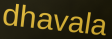
dhavala